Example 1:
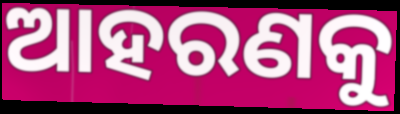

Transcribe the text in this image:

ଆହରଣକୁ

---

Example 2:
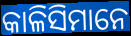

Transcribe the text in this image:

କାଳିସିମାନେ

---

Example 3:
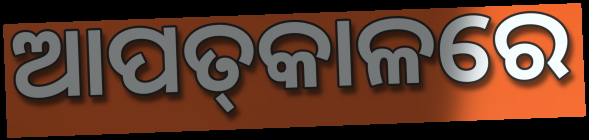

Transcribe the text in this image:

ଆପତ୍‌କାଳରେ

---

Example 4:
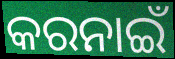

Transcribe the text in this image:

କରନାଇଁ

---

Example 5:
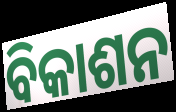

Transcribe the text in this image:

ବିକାଶନ